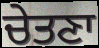
ਚੇਤਣਾ